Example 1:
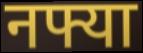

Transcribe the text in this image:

नफ्या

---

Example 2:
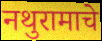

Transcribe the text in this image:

नथुरामाचे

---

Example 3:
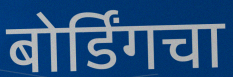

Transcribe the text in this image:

बोर्डिंगचा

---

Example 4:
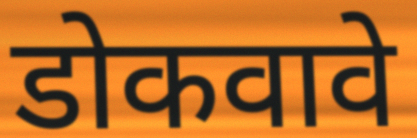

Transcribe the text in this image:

डोकवावे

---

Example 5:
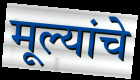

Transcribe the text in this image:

मूल्यांचे